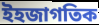
ইহজাগতিক